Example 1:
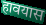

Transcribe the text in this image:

हावयास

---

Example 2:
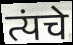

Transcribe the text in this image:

त्यंचे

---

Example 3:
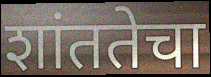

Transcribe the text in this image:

शांततेचा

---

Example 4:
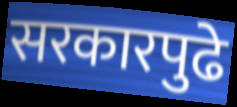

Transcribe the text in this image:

सरकारपुढे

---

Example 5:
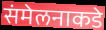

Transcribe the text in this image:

संमेलनाकडे